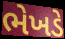
ભેખડે